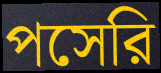
পসেরি